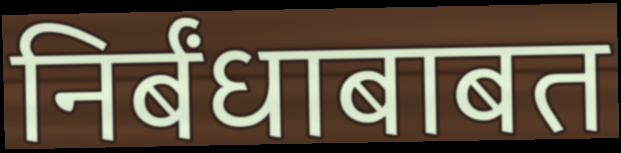
निर्बंधाबाबत